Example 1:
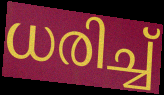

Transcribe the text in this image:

ധരിച്ച്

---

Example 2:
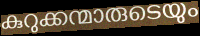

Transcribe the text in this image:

കുറുക്കന്മാരുടെയും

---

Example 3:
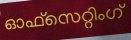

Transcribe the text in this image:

ഓഫ്സെറ്റിംഗ്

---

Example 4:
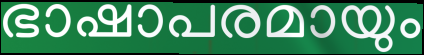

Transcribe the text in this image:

ഭാഷാപരമായും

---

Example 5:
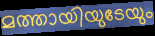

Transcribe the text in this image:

മത്തായിയുടേയും